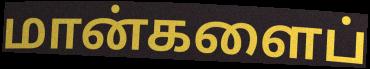
மான்களைப்